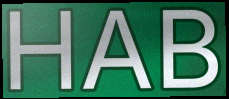
HAB